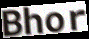
Bhor